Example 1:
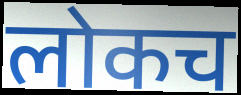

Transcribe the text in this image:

लोकच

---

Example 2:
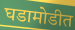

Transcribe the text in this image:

घडामोडीत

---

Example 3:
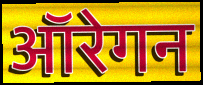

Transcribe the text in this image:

ऑरेगन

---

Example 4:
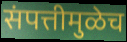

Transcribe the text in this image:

संपत्तीमुळेच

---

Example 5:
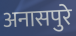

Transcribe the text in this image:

अनासपुरे